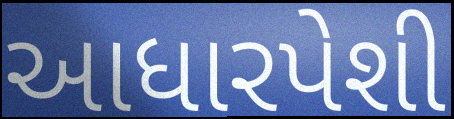
આધારપેશી